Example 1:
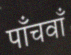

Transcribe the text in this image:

पाँचवाँ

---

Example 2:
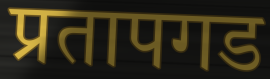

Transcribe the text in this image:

प्रतापगड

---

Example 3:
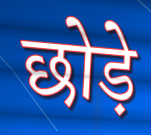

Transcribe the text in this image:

छोड़े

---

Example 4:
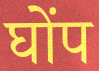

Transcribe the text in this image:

घोंप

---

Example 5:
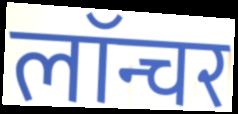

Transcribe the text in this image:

लॉन्चर